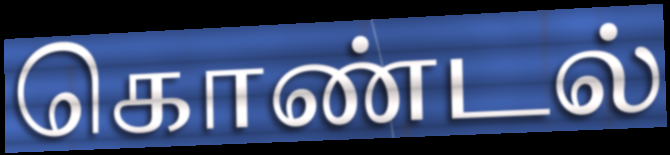
கொண்டல்